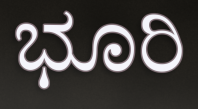
ಭೂರಿ